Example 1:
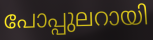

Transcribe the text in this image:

പോപ്പുലറായി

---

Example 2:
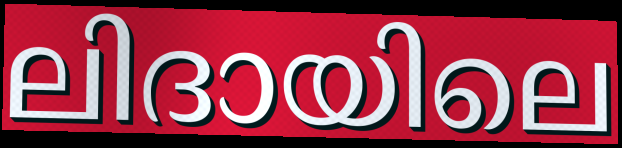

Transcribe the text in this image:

ലിദായിലെ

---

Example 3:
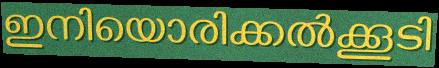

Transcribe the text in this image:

ഇനിയൊരിക്കൽക്കൂടി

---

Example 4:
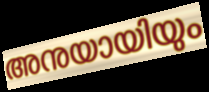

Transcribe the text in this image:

അനുയായിയും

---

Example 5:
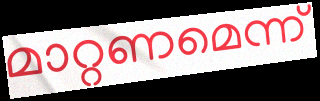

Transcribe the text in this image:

മാറ്റണമെന്ന്